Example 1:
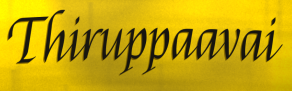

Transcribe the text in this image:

Thiruppaavai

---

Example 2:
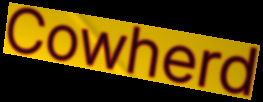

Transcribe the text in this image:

Cowherd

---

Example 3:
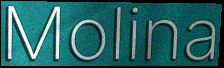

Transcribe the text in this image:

Molina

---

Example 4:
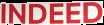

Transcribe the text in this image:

INDEED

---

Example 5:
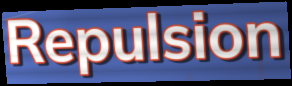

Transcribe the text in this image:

Repulsion